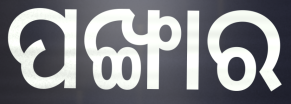
ପଙ୍ଖାର